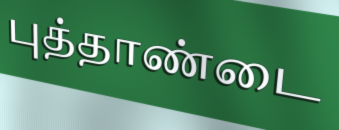
புத்தாண்டை